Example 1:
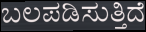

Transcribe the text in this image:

ಬಲಪಡಿಸುತ್ತಿದೆ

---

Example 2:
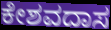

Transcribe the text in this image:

ಕೇಶವದಾಸ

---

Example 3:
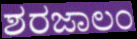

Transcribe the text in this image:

ಶರಜಾಲಂ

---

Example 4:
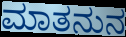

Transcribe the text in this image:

ಮಾತನುನ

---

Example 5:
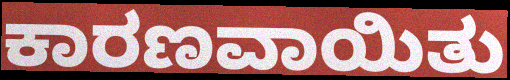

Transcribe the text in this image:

ಕಾರಣವಾಯಿತು